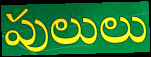
పులులు